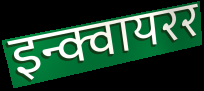
इन्क्वायरर